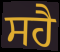
ਸਹੈ